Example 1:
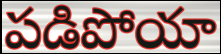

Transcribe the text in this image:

పడిపోయా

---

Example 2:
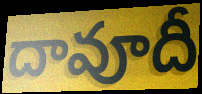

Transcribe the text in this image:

దావూదీ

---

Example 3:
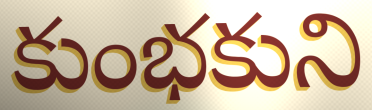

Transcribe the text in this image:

కుంభకుని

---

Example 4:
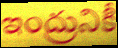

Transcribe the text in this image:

ఇంద్రునికీ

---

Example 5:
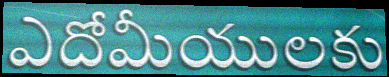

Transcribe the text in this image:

ఎదోమీయులకు